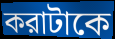
করাটাকে